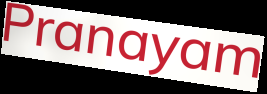
Pranayam